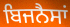
ਬਿਜਨੈਸਾਂ